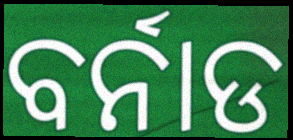
ବର୍ନାଡ